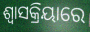
ଶ୍ୱାସକ୍ରିୟାରେ